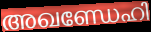
അഖണ്ഡേഹി